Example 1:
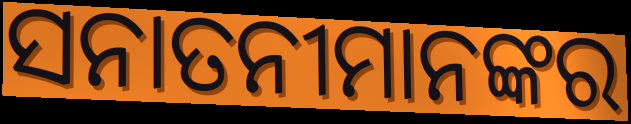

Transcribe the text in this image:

ସନାତନୀମାନଙ୍କର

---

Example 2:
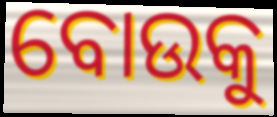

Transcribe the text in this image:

ବୋଉକୁ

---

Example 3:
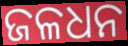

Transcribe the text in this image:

ଜଳଧନ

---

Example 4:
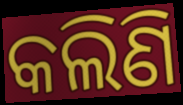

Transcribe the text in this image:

କଲିଣି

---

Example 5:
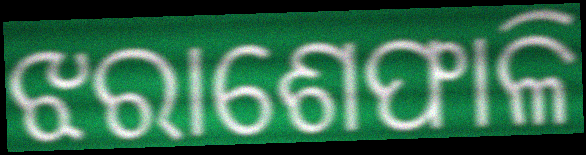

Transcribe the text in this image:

ଝରାଶେଫାଳି